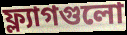
ফ্ল্যাগগুলো